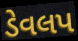
ડેવલપ